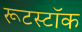
रूटस्टॉक